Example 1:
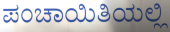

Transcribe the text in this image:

ಪಂಚಾಯಿತಿಯಲ್ಲಿ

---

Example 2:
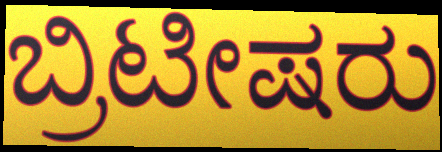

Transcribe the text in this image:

ಬ್ರಿಟೀಷರು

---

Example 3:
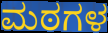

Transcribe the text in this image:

ಮಠಗಳ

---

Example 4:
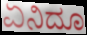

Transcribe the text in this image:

ಏನಿದೂ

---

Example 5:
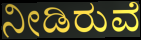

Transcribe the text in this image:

ನೀಡಿರುವೆ